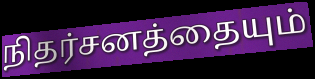
நிதர்சனத்தையும்